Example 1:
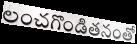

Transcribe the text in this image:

లంచగొండితనంతో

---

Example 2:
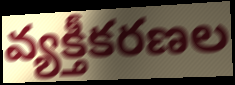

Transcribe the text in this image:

వ్యక్తీకరణల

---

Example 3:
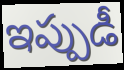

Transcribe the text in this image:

ఇప్పుడీ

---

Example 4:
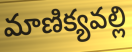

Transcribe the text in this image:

మాణిక్యవల్లి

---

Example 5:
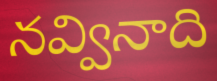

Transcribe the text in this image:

నవ్వినాది